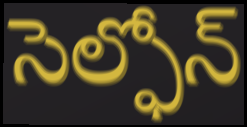
సెల్ఫోన్